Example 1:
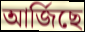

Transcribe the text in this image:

আৰ্জিছে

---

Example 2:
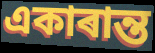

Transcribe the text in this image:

একাৰান্ত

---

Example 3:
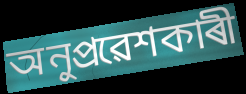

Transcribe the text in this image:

অনুপ্ৰৱেশকাৰী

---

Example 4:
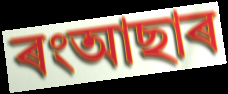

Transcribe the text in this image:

ৰংআছাৰ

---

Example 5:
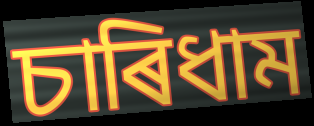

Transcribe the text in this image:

চাৰিধাম